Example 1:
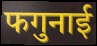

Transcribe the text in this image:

फगुनाई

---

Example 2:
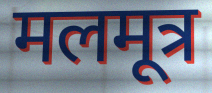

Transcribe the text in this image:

मलमूत्र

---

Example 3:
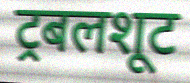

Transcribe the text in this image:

ट्रबलशूट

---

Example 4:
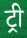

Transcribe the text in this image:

ट्री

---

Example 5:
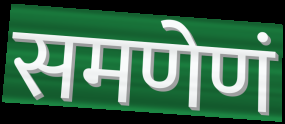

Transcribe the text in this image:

समणेणं